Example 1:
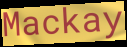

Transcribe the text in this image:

Mackay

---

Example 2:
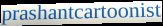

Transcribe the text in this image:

prashantcartoonist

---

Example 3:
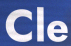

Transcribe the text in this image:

Cle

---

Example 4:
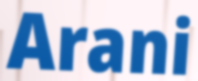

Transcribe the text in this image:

Arani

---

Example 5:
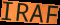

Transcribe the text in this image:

IRAF